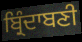
ਬ੍ਰਿੰਦਾਬਣੀ